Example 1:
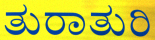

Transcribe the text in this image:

ತುರಾತುರಿ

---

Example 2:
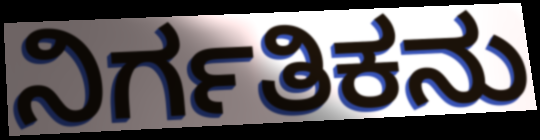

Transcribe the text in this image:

ನಿರ್ಗತಿಕನು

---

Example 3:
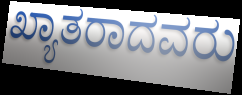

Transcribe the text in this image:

ಖ್ಯಾತರಾದವರು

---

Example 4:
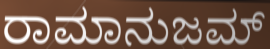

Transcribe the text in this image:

ರಾಮಾನುಜಮ್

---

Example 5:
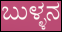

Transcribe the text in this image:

ಬುಳ್ಳನ